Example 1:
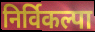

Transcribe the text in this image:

निर्विकल्पा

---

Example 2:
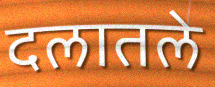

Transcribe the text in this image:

दलातले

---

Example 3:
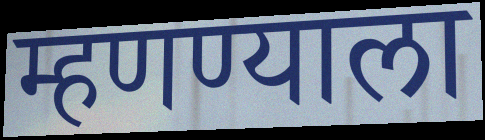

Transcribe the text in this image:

म्हणण्याला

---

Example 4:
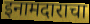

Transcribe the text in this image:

इनामदाराचा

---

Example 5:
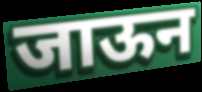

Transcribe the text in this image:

जाऊन